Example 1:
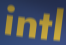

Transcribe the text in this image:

intl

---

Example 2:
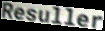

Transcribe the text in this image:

Resuller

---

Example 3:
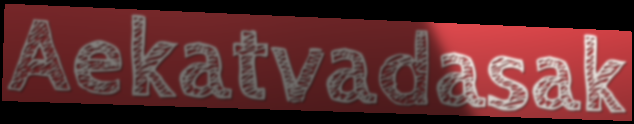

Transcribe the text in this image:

Aekatvadasak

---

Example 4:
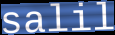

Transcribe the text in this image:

salil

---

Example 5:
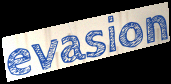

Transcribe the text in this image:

evasion